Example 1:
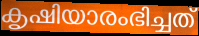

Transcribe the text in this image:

കൃഷിയാരംഭിച്ചത്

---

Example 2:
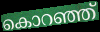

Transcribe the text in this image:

കൊറഞ്ഞ്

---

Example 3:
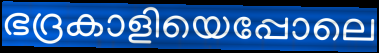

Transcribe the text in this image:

ഭദ്രകാളിയെപ്പോലെ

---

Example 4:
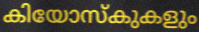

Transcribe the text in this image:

കിയോസ്കുകളും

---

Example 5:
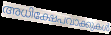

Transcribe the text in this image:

അധിക്ഷേപവാക്കുകൾ